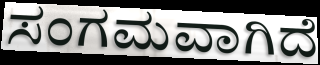
ಸಂಗಮವಾಗಿದೆ